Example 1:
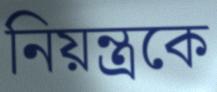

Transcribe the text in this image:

নিয়ন্ত্রকে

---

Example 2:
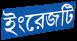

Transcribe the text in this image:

ইংরেজটি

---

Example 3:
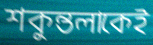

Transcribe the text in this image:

শকুন্তলাকেই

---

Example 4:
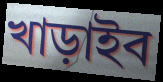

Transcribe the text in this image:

খাড়াইব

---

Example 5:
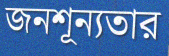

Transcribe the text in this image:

জনশূন্যতার